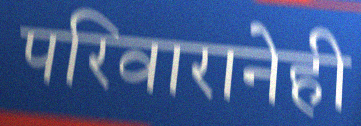
परिवारानेही